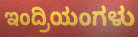
ಇಂದ್ರಿಯಂಗಳು